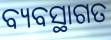
ବ୍ଯବସ୍ଥାଗତ